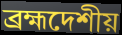
ব্রহ্মদেশীয়